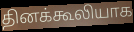
தினக்கூலியாக